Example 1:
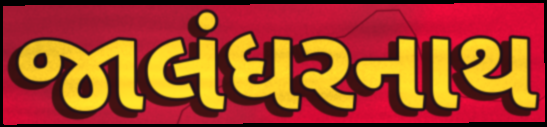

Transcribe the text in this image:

જાલંધરનાથ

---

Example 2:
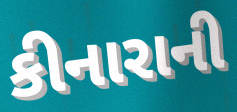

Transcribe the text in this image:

કીનારાની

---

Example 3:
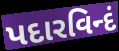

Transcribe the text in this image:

પદારવિન્દં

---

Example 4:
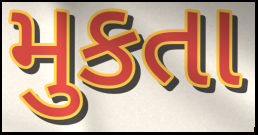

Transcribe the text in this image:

મુકતા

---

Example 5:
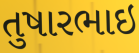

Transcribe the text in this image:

તુષારભાઇ